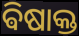
ଵିଷାକ୍ତ